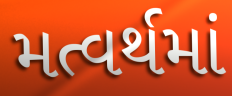
મત્વર્થમાં